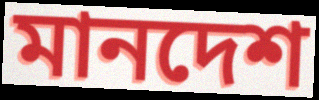
মানদেশ